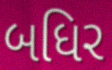
બધિર